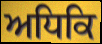
ਅਧਿਕਿ